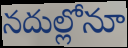
నదుల్లోనూ